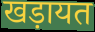
खड़ायत